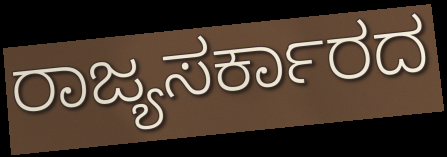
ರಾಜ್ಯಸರ್ಕಾರದ